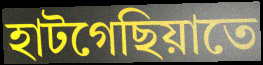
হাটগেছিয়াতে